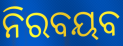
ନିରବୟବ